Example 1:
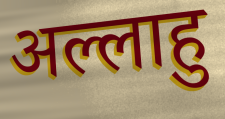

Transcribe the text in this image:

अल्लाहु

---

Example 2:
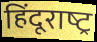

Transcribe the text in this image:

हिंदूराष्ट्र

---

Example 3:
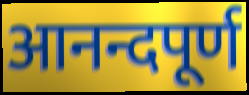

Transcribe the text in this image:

आनन्दपूर्ण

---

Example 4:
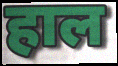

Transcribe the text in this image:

हाल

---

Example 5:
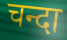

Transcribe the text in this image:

चन्दा